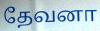
தேவனா